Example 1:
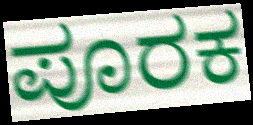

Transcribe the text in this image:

ಪೂರಕ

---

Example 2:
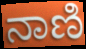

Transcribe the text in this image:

ನಾಣಿ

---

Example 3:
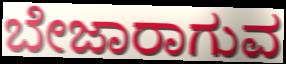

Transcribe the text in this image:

ಬೇಜಾರಾಗುವ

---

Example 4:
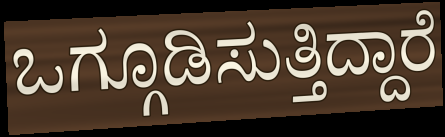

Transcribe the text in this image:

ಒಗ್ಗೂಡಿಸುತ್ತಿದ್ದಾರೆ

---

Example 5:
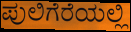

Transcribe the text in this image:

ಪುಲಿಗೆರೆಯಲ್ಲಿ